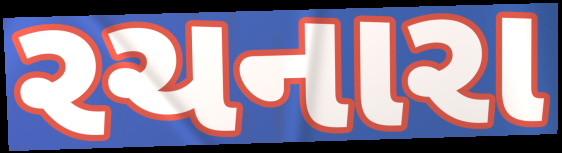
રચનારા